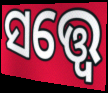
ସତ୍ତ୍ବେ